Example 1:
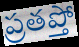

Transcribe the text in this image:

ప్రతప్తో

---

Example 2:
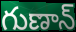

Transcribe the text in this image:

గుణాన్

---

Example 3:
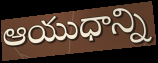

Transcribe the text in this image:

ఆయుధాన్ని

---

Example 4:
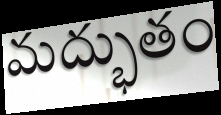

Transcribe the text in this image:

మద్భుతం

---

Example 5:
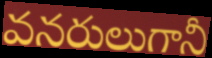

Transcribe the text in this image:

వనరులుగానీ